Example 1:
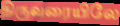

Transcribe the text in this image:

திருவரையிலே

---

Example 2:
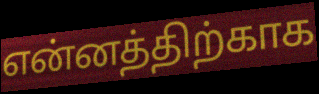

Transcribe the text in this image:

என்னத்திற்காக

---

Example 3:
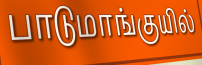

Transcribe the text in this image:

பாடுமாங்குயில்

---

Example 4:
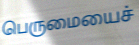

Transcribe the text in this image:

பெருமையைச்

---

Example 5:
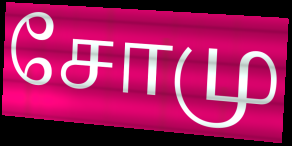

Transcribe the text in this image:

சோமு